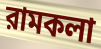
রামকলা